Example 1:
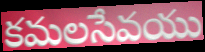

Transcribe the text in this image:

కమలసేవయు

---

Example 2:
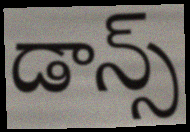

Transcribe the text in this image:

డాన్స్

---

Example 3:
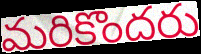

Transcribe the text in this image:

మరికొందరు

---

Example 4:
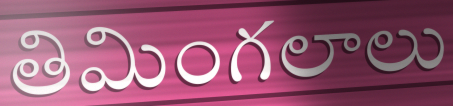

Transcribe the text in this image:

తిమింగలాలు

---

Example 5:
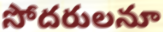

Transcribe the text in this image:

సోదరులనూ